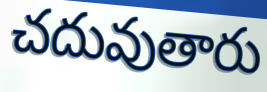
చదువుతారు